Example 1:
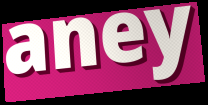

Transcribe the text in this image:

aney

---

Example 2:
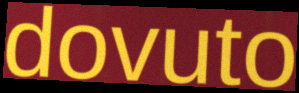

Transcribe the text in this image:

dovuto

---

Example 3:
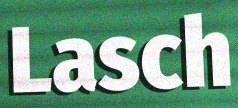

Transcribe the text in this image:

Lasch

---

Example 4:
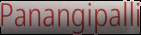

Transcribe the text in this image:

Panangipalli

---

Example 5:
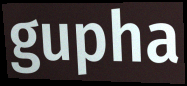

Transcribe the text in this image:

gupha